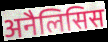
अनैलिसिस